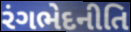
રંગભેદનીતિ